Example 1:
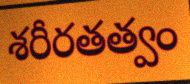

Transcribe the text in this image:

శరీరతత్వం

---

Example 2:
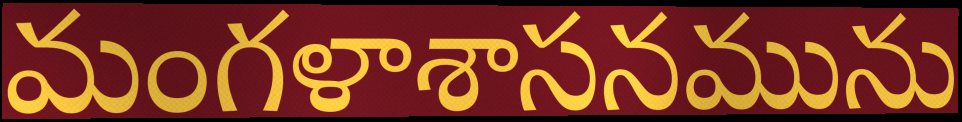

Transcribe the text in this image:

మంగళాశాసనమును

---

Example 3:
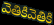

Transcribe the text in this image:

వెతికివెతికి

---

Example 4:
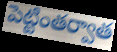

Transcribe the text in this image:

పెట్టింతర్వాత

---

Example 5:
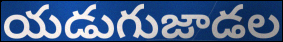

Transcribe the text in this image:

యడుగుజాడల